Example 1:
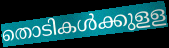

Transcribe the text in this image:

തൊടികൾക്കുളള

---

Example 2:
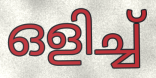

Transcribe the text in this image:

ഒളിച്ച്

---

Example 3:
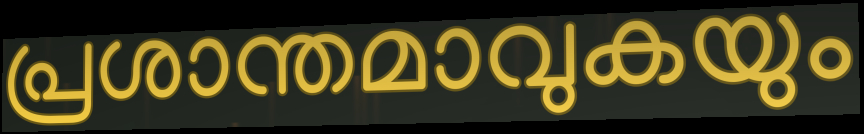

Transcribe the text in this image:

പ്രശാന്തമാവുകയും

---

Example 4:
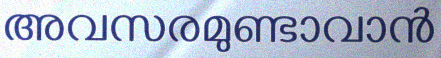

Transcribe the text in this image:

അവസരമുണ്ടാവാൻ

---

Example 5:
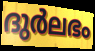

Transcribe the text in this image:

ദുർലഭം